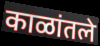
काळांतले